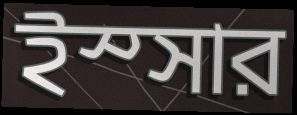
ইস্সার